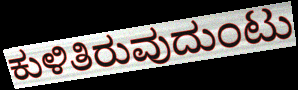
ಕುಳಿತಿರುವುದುಂಟು